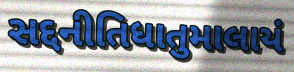
સદ્દનીતિધાતુમાલાયં